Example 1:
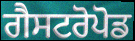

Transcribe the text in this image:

ਗੈਸਟਰੋਪੋਡ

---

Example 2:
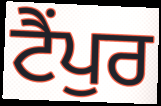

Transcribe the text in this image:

ਟੈਂਪੁਰ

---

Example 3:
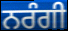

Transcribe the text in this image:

ਨਰੰਗੀ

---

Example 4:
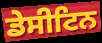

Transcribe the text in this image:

ਡੇਸੀਟਿਨ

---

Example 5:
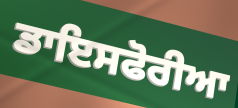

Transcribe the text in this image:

ਡਾਇਸਫੋਰੀਆ